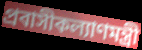
প্রবাসীকল্যাণমন্ত্রী